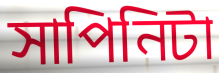
সাপিনিটা